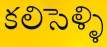
కలిసెళ్ళి